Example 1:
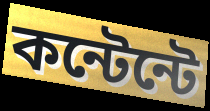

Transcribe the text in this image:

কন্টেন্টে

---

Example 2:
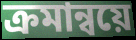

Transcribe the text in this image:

ক্রমান্বয়ে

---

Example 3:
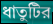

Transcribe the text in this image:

ধাতুটির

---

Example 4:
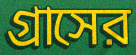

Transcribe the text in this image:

গ্রাসের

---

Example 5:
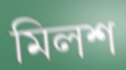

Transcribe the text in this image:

মিলশ